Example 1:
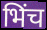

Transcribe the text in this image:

भिंच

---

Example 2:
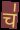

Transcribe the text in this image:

च॑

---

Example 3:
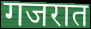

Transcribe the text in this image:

गजरात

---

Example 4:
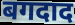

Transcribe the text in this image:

बगदाद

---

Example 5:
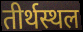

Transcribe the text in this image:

तीर्थस्थल